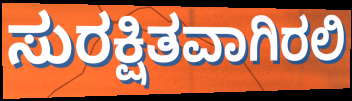
ಸುರಕ್ಷಿತವಾಗಿರಲಿ